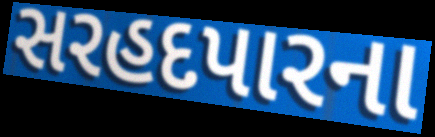
સરહદપારના